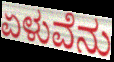
ಏಳುವೆನು